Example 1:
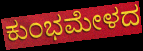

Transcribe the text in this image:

ಕುಂಭಮೇಳದ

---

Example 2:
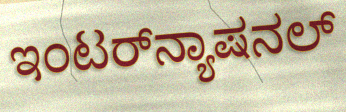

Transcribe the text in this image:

ಇಂಟರ್‌ನ್ಯಾಷನಲ್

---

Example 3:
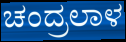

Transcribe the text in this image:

ಚಂದ್ರಲಾಳ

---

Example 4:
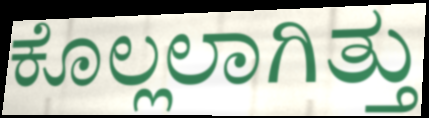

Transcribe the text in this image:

ಕೊಲ್ಲಲಾಗಿತ್ತು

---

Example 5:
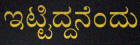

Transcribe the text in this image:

ಇಟ್ಟಿದ್ದನೆಂದು